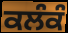
ਕਲੰਕੰ